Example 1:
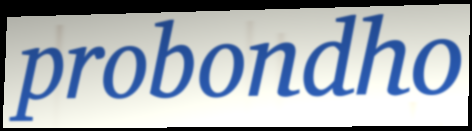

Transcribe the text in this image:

probondho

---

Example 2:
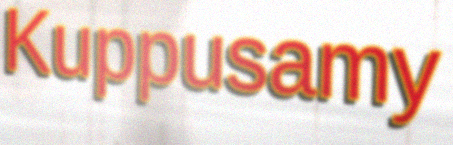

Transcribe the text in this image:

Kuppusamy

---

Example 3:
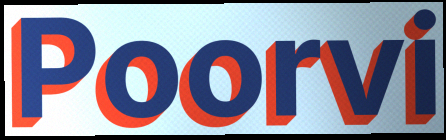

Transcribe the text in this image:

Poorvi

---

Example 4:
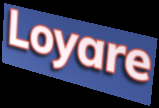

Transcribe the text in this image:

Loyare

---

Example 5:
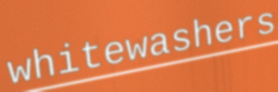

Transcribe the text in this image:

whitewashers